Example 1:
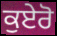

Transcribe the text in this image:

ਕੁਏਰੋ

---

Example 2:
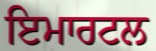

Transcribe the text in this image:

ਇਮਾਰਟਲ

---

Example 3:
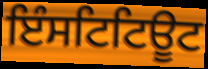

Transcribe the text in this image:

ਇੰਸਟਿਟਿਊਟ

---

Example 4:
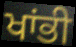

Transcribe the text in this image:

ਖਾਂਭੀ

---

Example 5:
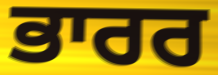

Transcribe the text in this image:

ਭਾਰਰ